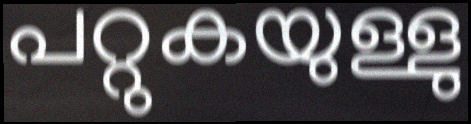
പറ്റുകയുള്ളു